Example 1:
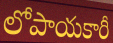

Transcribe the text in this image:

లోపాయకారీ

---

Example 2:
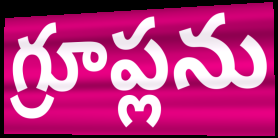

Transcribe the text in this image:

గ్రూప్లను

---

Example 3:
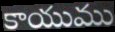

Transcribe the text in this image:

కాయుము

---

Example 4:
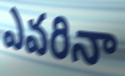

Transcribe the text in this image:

ఎవరినా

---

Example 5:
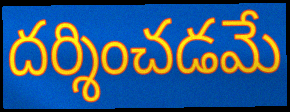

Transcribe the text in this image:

దర్శించడమే